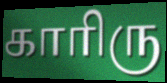
காரிரு